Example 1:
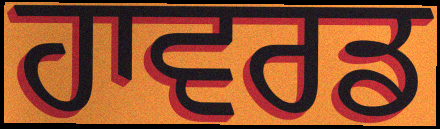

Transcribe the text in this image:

ਹਾਵਰਡ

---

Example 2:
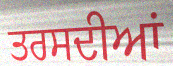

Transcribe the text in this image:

ਤਰਸਦੀਆਂ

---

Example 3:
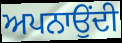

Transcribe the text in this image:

ਅਪਨਾਉਂਦੀ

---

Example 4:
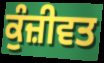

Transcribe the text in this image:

ਕੁੰਜ਼ੀਵਤ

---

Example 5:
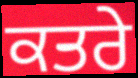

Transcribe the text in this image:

ਕਤਰੇ